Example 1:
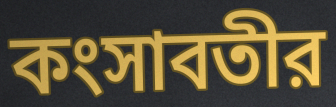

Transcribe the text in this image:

কংসাবতীর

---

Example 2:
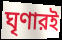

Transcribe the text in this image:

ঘৃণারই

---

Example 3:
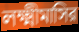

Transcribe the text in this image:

লক্ষ্মীমাসির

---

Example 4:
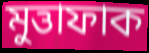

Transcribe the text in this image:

মুত্তাফাক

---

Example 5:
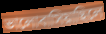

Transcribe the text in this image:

ভালোবাসিয়াছিলে